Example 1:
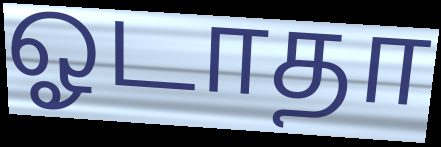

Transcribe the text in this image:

ஓடாதா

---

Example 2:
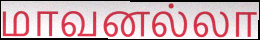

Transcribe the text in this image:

மாவனல்லா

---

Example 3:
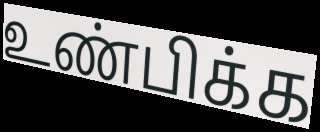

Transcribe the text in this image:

உண்பிக்க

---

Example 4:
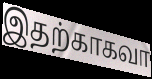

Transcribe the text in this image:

இதற்காகவா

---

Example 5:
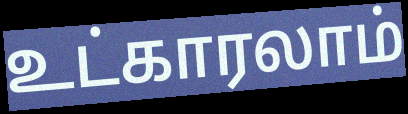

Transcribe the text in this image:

உட்காரலாம்